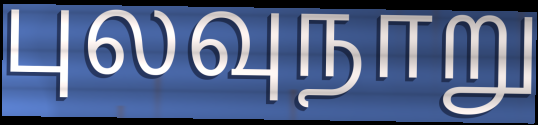
புலவுநாறு